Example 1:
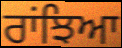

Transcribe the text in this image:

ਰਾਂਝਿਆ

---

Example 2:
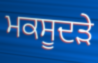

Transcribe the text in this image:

ਮਕਸੂਦੜੇ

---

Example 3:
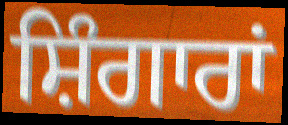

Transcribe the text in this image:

ਸ਼ਿੰਗਾਰਾਂ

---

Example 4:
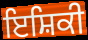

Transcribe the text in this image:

ਇਸ਼ਿਕੀ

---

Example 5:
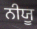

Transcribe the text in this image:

ਨੀਯੂ